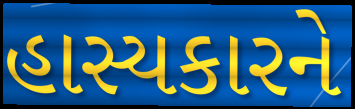
હાસ્યકારને